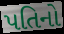
પતિનો